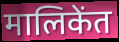
मालिकेंत